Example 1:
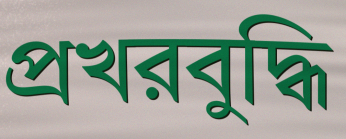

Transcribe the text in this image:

প্রখরবুদ্ধি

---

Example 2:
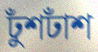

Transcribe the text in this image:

ঢুঁশঢাঁশ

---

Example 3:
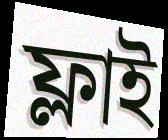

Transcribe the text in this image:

ফ্লাই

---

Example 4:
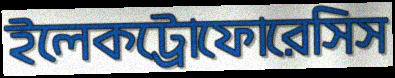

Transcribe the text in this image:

ইলেকট্রোফোরেসিস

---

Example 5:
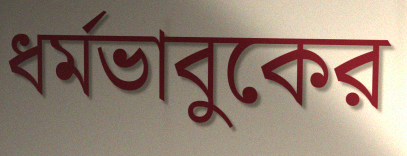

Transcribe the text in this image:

ধর্মভাবুকের